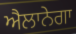
ਐਲਾਨੇਗਾ